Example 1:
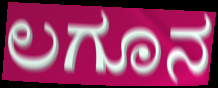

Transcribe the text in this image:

ಲಗೂನ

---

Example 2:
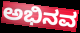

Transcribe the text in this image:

ಅಭಿನವ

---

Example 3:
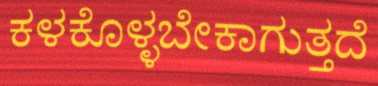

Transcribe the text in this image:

ಕಳಕೊಳ್ಳಬೇಕಾಗುತ್ತದೆ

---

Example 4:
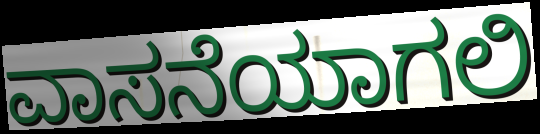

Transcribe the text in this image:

ವಾಸನೆಯಾಗಲಿ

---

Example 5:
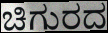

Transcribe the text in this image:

ಚಿಗುರದ